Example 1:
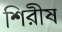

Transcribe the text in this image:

শিরীষ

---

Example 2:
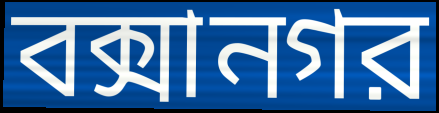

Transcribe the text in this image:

বক্সানগর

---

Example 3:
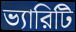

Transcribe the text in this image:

ভ্যারিটি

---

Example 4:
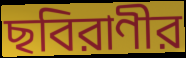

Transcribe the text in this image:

ছবিরাণীর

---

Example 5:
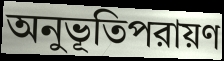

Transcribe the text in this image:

অনুভূতিপরায়ণ